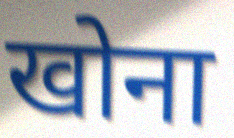
खोना